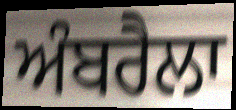
ਅੰਬਰੈਲਾ